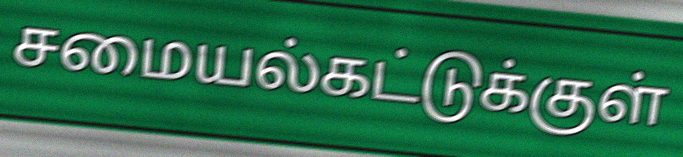
சமையல்கட்டுக்குள்